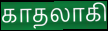
காதலாகி